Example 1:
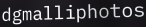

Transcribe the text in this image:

dgmalliphotos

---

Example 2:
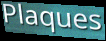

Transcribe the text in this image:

Plaques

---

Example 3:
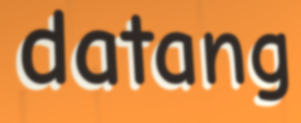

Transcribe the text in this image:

datang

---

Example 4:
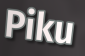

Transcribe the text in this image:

Piku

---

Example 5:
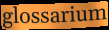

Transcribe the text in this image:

glossarium